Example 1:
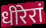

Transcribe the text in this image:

धीरेरां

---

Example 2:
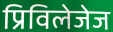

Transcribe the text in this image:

प्रिविलेजेज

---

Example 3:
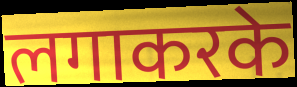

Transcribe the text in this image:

लगाकरके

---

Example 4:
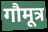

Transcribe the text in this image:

गौमूत्र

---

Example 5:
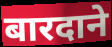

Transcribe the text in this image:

बारदाने